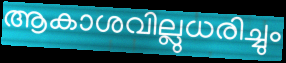
ആകാശവില്ലുധരിച്ചും